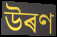
উৰণ